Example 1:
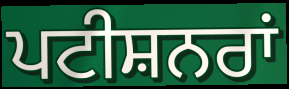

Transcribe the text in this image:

ਪਟੀਸ਼ਨਰਾਂ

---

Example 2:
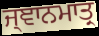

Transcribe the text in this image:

ਜ੍ਞਾਨਮਾਤ੍ਰ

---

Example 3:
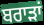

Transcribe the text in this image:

ਬਰਾੜਾਂ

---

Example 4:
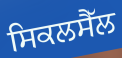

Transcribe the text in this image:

ਸਿਕਲਸੈੱਲ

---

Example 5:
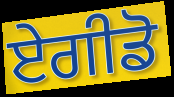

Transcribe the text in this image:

ਏਗੀਡੋ